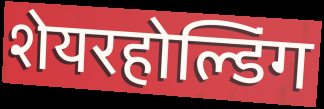
शेयरहोल्डिंग